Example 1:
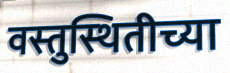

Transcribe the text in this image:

वस्तुस्थितीच्या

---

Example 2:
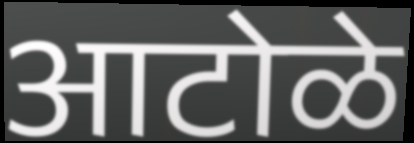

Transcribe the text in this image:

आटोळे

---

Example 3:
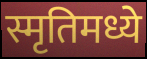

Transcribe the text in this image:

स्मृतिमध्ये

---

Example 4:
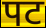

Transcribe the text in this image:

पट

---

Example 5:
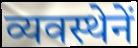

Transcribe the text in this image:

व्यवस्थेनें